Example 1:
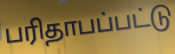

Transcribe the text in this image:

பரிதாபப்பட்டு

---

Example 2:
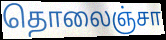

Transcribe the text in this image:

தொலைஞ்சா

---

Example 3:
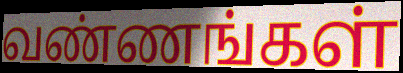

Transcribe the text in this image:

வண்ணங்கள்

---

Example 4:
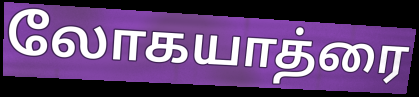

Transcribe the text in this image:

லோகயாத்ரை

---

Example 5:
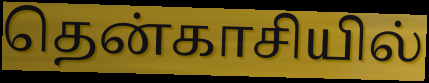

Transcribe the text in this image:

தென்காசியில்